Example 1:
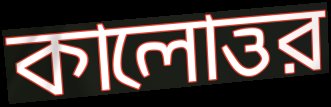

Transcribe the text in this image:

কালোত্তর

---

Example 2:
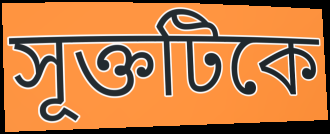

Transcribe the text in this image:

সূক্তটিকে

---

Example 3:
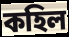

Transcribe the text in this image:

কহিল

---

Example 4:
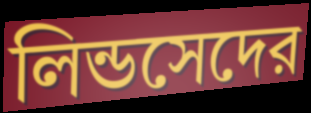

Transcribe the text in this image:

লিন্ডসেদের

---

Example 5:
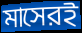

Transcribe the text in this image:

মাসেরই